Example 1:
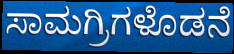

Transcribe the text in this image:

ಸಾಮಗ್ರಿಗಳೊಡನೆ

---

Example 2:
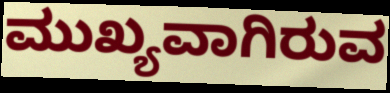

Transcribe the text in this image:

ಮುಖ್ಯವಾಗಿರುವ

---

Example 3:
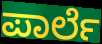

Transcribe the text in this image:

ಪಾರ್ಲೆ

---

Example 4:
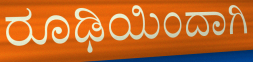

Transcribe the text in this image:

ರೂಢಿಯಿಂದಾಗಿ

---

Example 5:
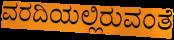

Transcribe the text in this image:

ವರದಿಯಲ್ಲಿರುವಂತೆ